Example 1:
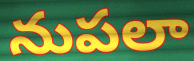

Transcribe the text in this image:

నుపలా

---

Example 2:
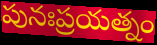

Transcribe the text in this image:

పునఃప్రయత్నం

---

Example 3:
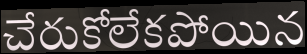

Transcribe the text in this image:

చేరుకోలేకపోయిన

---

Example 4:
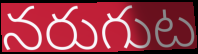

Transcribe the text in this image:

నరుగుట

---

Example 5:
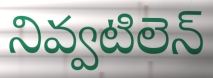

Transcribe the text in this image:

నివ్వటిలెన్